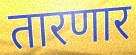
तारणार